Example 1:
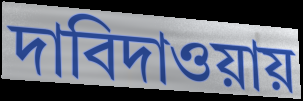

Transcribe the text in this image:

দাবিদাওয়ায়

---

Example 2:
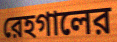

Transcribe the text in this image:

রেহগালের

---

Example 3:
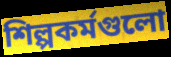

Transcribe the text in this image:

শিল্পকর্মগুলো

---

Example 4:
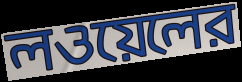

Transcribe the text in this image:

লওয়েলের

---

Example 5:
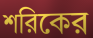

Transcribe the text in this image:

শরিকের